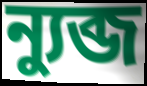
ন্যুব্জ